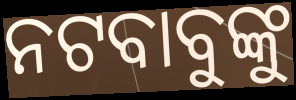
ନଟବାବୁଙ୍କୁ